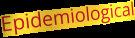
Epidemiological